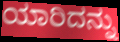
ಯಾರಿದನ್ನು